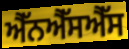
ਐੱਨਐੱਸਐੱਸ